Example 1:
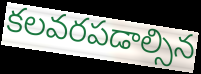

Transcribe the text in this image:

కలవరపడాల్సిన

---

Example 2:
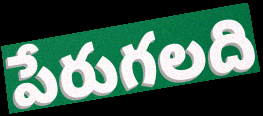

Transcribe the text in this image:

పేరుగలది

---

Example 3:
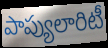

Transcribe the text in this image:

పాప్యులారిటీ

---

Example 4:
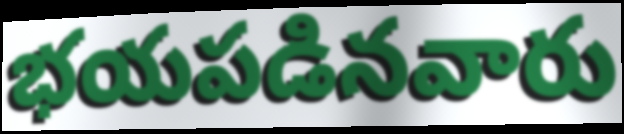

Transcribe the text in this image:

భయపడినవారు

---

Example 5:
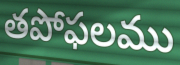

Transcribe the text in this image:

తపోఫలము